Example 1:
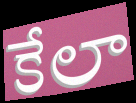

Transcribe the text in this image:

కేలా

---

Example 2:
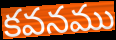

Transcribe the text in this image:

కవనము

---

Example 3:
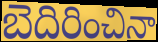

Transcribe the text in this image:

బెదిరించినా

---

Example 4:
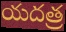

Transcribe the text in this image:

యదత్ర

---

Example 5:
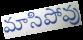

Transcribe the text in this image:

మాసిపోవు